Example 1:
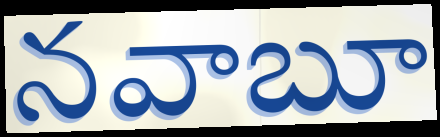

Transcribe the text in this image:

నవాబూ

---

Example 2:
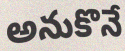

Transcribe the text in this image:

అనుకొనే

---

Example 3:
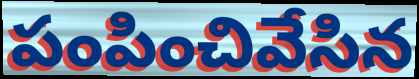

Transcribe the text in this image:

పంపించివేసిన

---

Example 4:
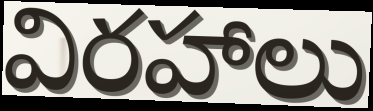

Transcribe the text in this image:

విరహాలు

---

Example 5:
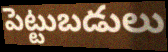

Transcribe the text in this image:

పెట్టుబడులు